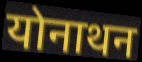
योनाथन